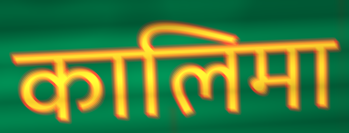
कालिमा